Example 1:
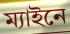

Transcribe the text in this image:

ম্যাইনে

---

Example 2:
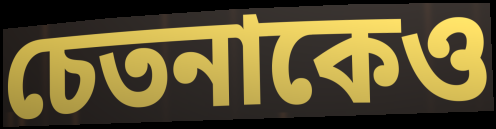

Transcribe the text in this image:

চেতনাকেও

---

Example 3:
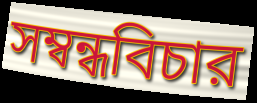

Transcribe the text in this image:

সম্বন্ধবিচার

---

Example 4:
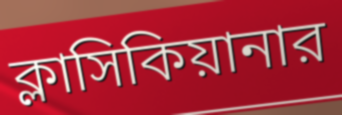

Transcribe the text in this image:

ক্লাসিকিয়ানার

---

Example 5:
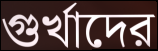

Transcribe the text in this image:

গুর্খাদের